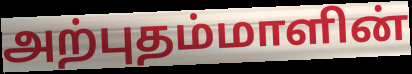
அற்புதம்மாளின்